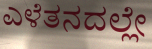
ಎಳೆತನದಲ್ಲೇ